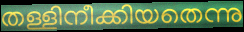
തള്ളിനീക്കിയതെന്നു